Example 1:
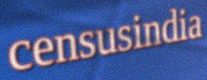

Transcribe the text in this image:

censusindia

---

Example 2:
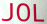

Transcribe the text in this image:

JOL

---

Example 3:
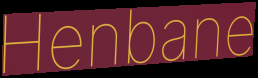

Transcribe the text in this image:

Henbane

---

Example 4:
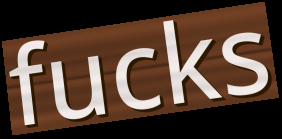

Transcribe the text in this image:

fucks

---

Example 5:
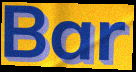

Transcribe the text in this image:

Bar